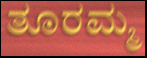
ತೂರಮ್ಮ